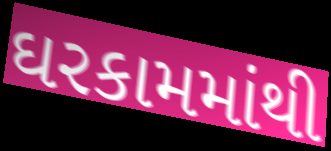
ઘરકામમાંથી